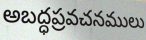
అబద్ధప్రవచనములు